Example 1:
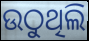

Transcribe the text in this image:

ଉଠୁଥିଲି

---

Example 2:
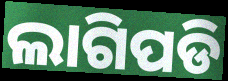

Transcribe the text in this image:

ଲାଗିପଡି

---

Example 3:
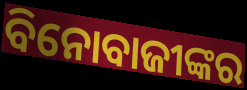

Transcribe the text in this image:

ବିନୋବାଜୀଙ୍କର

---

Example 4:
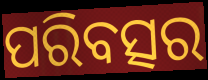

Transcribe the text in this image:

ପରିବତ୍ସର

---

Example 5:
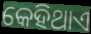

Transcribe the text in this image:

କେହିଥାଏ